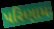
પરિણામઃ